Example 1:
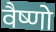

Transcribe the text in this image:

वैष्‍णो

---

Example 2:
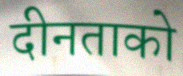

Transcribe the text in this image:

दीनताको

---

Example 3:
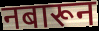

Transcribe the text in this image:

नबारून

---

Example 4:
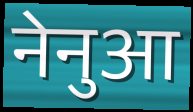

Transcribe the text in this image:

नेनुआ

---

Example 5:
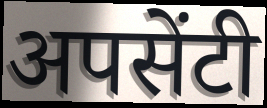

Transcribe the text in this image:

अपसेंटी